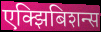
एक्झिबिशन्स